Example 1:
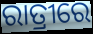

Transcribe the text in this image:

ରାତ୍ରୀରେ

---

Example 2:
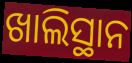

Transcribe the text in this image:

ଖାଲିସ୍ଥାନ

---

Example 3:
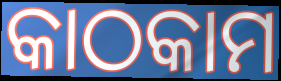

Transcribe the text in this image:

କାଠକାମ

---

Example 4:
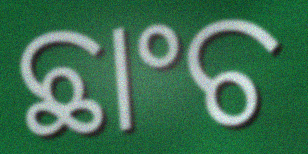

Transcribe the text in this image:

ଛାଂଚ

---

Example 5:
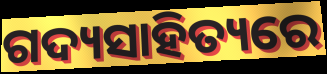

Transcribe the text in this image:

ଗଦ୍ୟସାହିତ୍ୟରେ